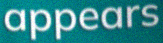
appears